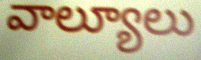
వాల్యూలు